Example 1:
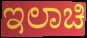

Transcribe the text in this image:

ಇಲಾಚಿ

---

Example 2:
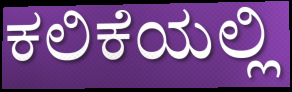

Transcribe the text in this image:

ಕಲಿಕೆಯಲ್ಲಿ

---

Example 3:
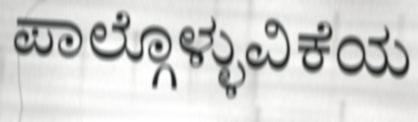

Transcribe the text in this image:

ಪಾಲ್ಗೊಳ್ಳುವಿಕೆಯ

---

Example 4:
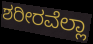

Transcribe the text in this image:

ಶರೀರವೆಲ್ಲಾ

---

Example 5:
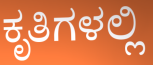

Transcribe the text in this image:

ಕೃತಿಗಳಲ್ಲಿ